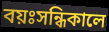
বয়ঃসন্ধিকালে